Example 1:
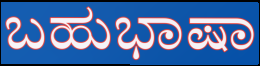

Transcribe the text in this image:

ಬಹುಭಾಷಾ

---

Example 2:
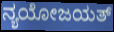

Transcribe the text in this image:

ನ್ಯಯೋಜಯತ್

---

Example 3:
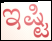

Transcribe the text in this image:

ಇಷ್ಟಿ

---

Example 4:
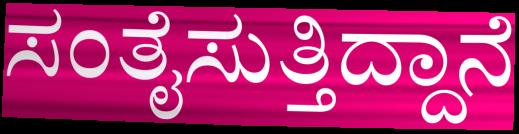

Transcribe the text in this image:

ಸಂತೈಸುತ್ತಿದ್ದಾನೆ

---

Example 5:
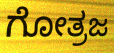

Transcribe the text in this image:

ಗೋತ್ರಜ